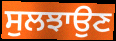
ਸੁਲਝਾਉਣ